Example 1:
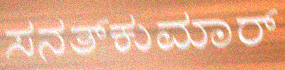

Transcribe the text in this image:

ಸನತ್‌ಕುಮಾರ್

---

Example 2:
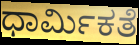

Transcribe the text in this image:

ಧಾರ್ಮಿಕತೆ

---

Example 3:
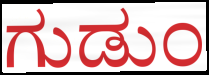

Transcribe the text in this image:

ಗುಡುಂ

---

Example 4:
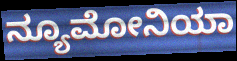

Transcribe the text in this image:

ನ್ಯೂಮೋನಿಯಾ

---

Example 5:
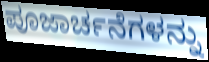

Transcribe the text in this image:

ಪೂಜಾರ್ಚನೆಗಳನ್ನು